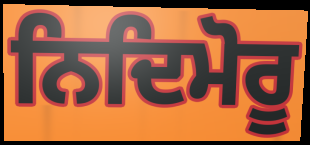
ਨਿਦਿਮੋਰੂ